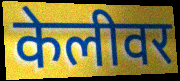
केलीवर